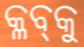
କ୍ଳବ୍‍କୁ